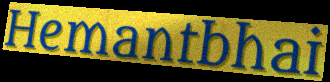
Hemantbhai